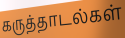
கருத்தாடல்கள்